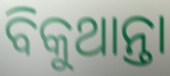
ବିକୁଥାନ୍ତା